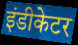
इंडीकेटर